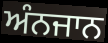
ਅੰਨਜਾਨ